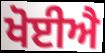
ਖੋਈਐ